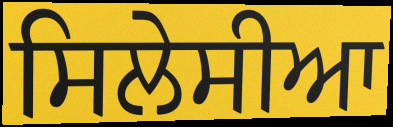
ਸਿਲੇਸੀਆ